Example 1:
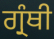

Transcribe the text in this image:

ਗ੍ਰੰਥੀ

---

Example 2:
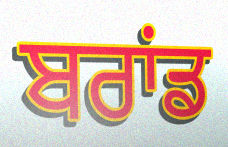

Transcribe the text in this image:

ਬਰਾਂਡ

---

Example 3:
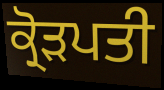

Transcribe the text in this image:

ਕ੍ਰੋੜਪਤੀ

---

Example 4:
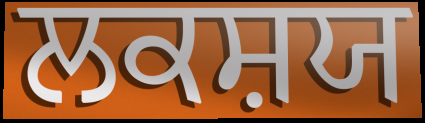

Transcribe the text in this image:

ਲਕਸ਼ਯ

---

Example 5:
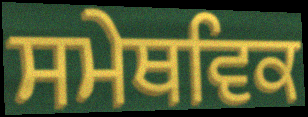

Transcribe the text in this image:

ਸਮੇਥਵਿਕ